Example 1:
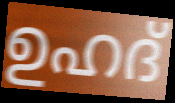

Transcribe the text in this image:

ഉഹദ്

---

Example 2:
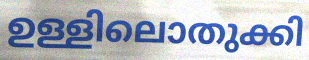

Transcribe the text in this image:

ഉള്ളിലൊതുക്കി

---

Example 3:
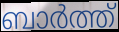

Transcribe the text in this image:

ബാർത്ത്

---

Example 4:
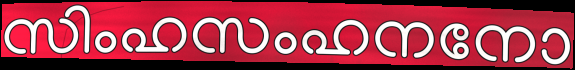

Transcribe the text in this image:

സിംഹസംഹനനോ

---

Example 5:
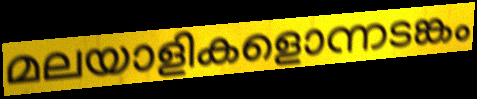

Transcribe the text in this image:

മലയാളികളൊന്നടങ്കം